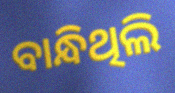
ବାନ୍ଧିଥିଲି